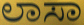
ಲಾಸಾ